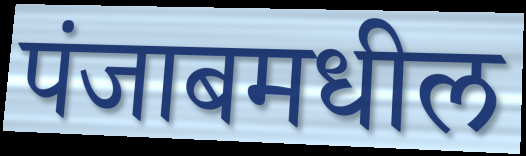
पंजाबमधील